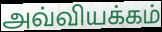
அவ்வியக்கம்